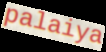
palaiya